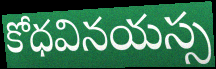
కోధవినయస్స